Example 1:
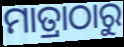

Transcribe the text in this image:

ମାତ୍ରାଠାରୁ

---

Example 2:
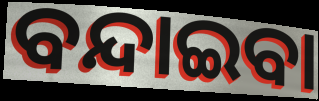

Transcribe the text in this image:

ବନ୍ଦାଇବା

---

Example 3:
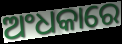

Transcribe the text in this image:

ଅଂଧକାରେ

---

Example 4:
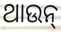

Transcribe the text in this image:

ଥାଉନ୍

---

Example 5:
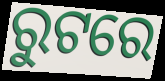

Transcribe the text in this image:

ରୁଟରେ